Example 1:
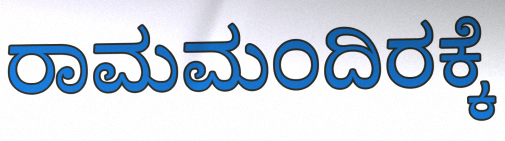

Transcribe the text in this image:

ರಾಮಮಂದಿರಕ್ಕೆ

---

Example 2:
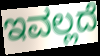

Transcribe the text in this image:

ಇವಲ್ಲದೆ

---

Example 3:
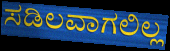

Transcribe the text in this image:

ಸಡಿಲವಾಗಲಿಲ್ಲ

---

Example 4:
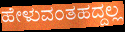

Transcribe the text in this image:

ಹೇಳುವಂತಹದ್ದಲ್ಲ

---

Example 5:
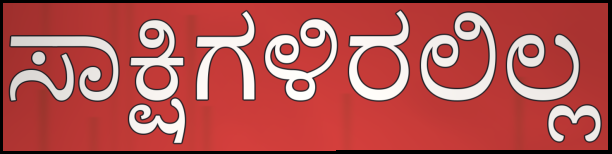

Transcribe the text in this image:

ಸಾಕ್ಷಿಗಳಿರಲಿಲ್ಲ